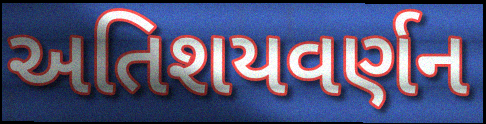
અતિશયવર્ણન